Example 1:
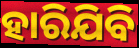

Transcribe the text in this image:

ହାରିଯିବି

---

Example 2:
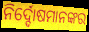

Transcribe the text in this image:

ନିର୍ଦ୍ଦୋଷମାନଙ୍କର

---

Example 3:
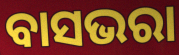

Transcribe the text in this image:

ବାସଭରା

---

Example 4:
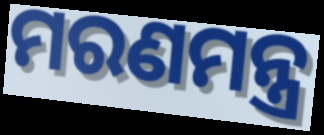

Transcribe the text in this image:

ମରଣମନ୍ତ୍ର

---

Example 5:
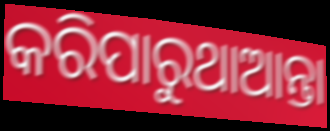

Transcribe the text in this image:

କରିପାରୁଥାଆନ୍ତା